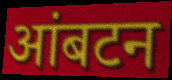
आंबटन